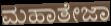
ಮಹಾತೇಜಾ